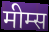
मीम्स